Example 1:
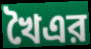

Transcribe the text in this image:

খৈএর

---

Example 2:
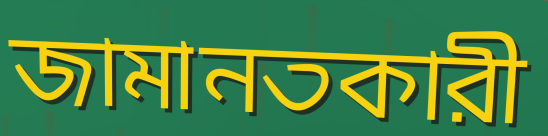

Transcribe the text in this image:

জামানতকারী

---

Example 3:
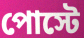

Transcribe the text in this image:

পোস্টে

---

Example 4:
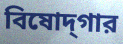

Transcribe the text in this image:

বিষোদ্‌গার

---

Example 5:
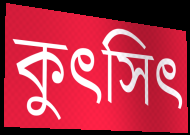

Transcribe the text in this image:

কুৎসিৎ